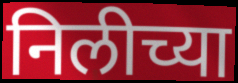
निलीच्या